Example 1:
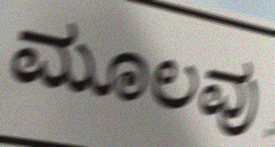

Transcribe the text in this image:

ಮೂಲವು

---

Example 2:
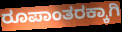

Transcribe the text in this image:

ರೂಪಾಂತರಕ್ಕಾಗಿ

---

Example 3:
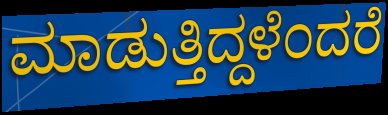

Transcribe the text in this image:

ಮಾಡುತ್ತಿದ್ದಳೆಂದರೆ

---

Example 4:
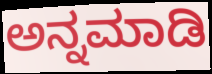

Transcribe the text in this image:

ಅನ್ನಮಾಡಿ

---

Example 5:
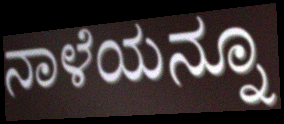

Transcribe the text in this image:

ನಾಳೆಯನ್ನೂ